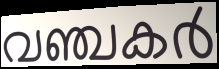
വഞ്ചകർ